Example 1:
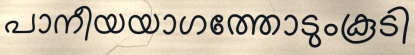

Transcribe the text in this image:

പാനീയയാഗത്തോടുംകൂടി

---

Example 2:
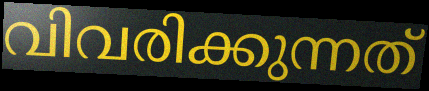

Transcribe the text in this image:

വിവരിക്കുന്നത്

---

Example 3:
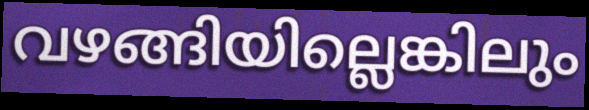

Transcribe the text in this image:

വഴങ്ങിയില്ലെങ്കിലും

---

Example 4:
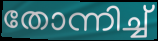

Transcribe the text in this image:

തോന്നിച്ച്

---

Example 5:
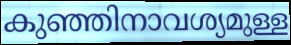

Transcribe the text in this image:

കുഞ്ഞിനാവശ്യമുള്ള